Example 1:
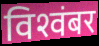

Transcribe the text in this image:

विश्वंबर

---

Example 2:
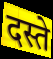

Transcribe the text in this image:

दस्ते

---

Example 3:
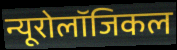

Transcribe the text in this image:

न्यूरोलॉजिकल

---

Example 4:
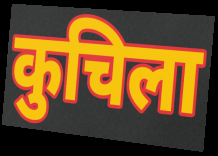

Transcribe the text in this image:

कुचिला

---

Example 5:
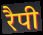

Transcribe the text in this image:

रैपी